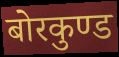
बोरकुण्ड